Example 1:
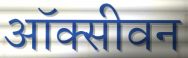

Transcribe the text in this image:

ऑक्सीवन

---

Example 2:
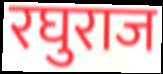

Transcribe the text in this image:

रघुराज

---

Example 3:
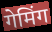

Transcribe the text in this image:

गेमिंग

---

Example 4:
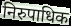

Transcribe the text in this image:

निरुपाधिक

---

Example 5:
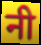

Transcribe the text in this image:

नी